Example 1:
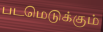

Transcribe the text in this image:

படமெடுக்கும்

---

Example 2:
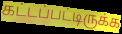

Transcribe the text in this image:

கட்டப்பட்டிருக்க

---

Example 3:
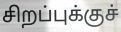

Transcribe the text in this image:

சிறப்புக்குச்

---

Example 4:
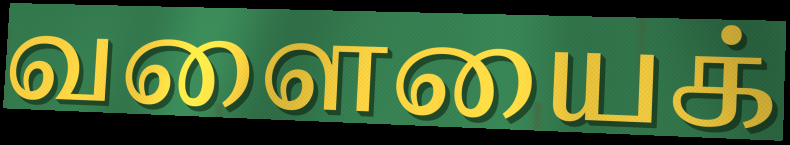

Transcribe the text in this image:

வளையைக்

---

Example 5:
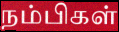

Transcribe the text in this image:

நம்பிகள்